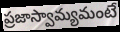
ప్రజాస్వామ్యమంటే